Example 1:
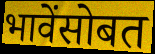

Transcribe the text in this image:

भावेंसोबत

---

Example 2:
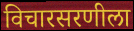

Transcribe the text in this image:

विचारसरणीला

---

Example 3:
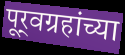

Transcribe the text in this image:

पूर्वग्रहांच्या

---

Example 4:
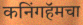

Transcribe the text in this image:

कनिंगहॅमचा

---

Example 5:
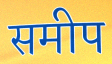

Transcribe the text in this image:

समीप